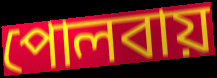
পোলবায়